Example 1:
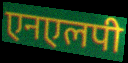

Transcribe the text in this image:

एनएलपी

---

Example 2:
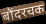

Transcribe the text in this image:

बोंदरचक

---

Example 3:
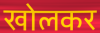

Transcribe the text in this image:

खोलकर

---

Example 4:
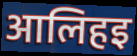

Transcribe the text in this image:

आलिहइ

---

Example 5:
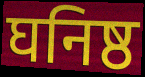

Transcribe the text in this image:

घनिष्ठ